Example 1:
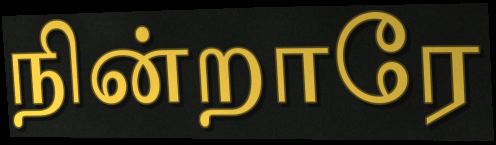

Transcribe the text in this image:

நின்றாரே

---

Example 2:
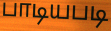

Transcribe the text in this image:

பாடியபடி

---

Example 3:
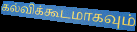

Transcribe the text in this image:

கல்விக்கூடமாகவும்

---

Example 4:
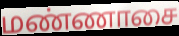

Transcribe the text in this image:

மண்ணாசை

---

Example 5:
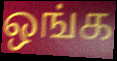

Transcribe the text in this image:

ஒங்க